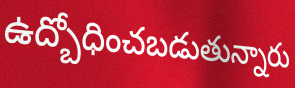
ఉద్బోధించబడుతున్నారు